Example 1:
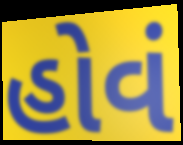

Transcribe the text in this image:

હોવં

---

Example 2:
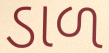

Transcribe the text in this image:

ડાળ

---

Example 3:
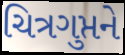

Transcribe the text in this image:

ચિત્રગુપ્તને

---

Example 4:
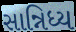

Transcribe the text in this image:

સાન્નિધ્ય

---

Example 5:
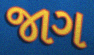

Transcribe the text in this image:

જાગ